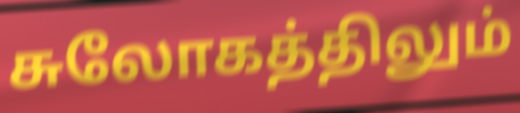
சுலோகத்திலும்